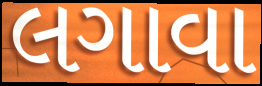
લગાવા